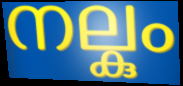
നല്കും